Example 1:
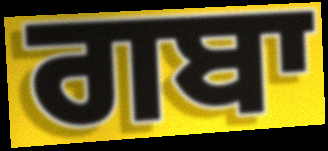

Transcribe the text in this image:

ਗਬਾ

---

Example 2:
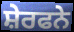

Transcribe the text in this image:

ਸ਼ੇਰਫਨੇ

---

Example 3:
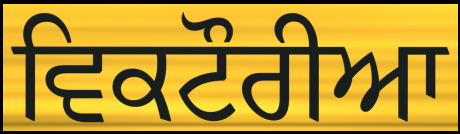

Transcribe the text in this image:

ਵਿਕਟੌਰੀਆ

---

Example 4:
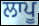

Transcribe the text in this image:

ਲਾਪੂ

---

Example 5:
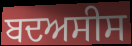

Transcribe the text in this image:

ਬਦਅਸੀਸ